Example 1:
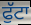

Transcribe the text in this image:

ਫੁੱਟਾ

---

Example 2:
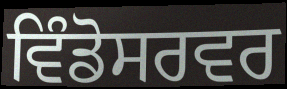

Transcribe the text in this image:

ਵਿੰਡੋਸਰਵਰ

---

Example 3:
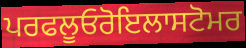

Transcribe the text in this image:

ਪਰਫਲੂਓਰੋਇਲਾਸਟੋਮਰ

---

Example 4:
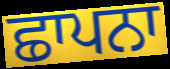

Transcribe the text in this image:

ਛਾਪਨਾ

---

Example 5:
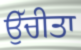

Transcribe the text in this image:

ਉੱਚੀਤਾ